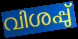
വിശപ്പു്